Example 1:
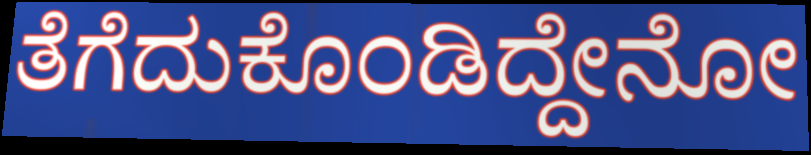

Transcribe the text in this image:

ತೆಗೆದುಕೊಂಡಿದ್ದೇನೋ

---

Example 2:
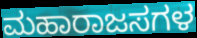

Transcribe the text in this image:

ಮಹಾರಾಜಸಗಳ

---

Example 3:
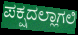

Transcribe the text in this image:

ಪಕ್ಷದಲ್ಲಾಗಲಿ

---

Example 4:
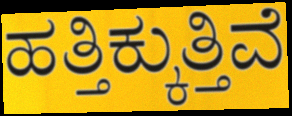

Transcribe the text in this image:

ಹತ್ತಿಕ್ಕುತ್ತಿವೆ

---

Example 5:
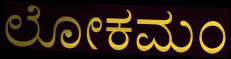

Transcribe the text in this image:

ಲೋಕಮಂ